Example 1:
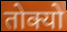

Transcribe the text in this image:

तोक्यो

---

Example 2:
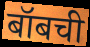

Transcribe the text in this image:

बॉबची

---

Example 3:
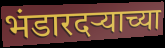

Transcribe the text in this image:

भंडारदर्‍याच्या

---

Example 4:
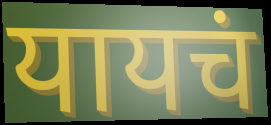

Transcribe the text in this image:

यायचं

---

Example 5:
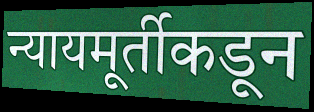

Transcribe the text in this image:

न्यायमूर्तीकडून